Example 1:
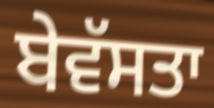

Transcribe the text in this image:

ਬੇਵੱਸਤਾ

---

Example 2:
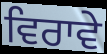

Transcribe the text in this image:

ਵਿਰਾਵੇ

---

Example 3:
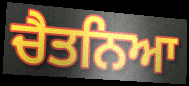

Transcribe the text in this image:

ਚੈਤਨਿਆ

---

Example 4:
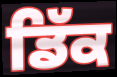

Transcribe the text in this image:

ਡਿੱਕ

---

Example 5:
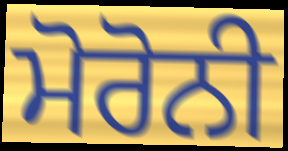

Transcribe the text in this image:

ਮੋਰੋਨੀ